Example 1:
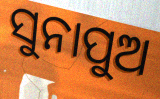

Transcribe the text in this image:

ସୁନାପୁଅ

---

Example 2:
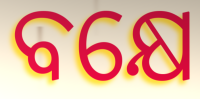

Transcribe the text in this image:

ବକ୍ଷେ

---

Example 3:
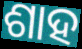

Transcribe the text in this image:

ଶାହ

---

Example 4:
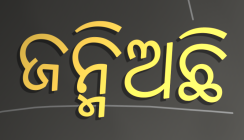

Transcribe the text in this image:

ଜନ୍ମିଅଛି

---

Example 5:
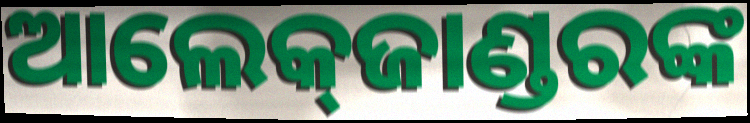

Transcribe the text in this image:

ଆଲେକ୍‍ଜାଣ୍ଡରଙ୍କ